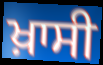
ਖ਼ਾਸੀ